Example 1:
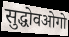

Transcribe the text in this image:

सुद्धोवओगो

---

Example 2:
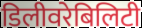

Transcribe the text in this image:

डिलीवरेबिलिटी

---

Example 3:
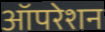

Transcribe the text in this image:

ऑपरेशन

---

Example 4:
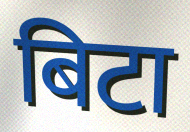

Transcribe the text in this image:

बिटा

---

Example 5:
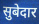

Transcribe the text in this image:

सुबेदार